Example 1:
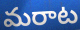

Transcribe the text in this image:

మరాట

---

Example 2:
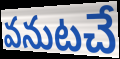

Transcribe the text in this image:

వనుటచే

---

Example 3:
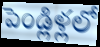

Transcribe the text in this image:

పెండ్లిళ్లలో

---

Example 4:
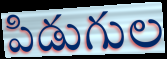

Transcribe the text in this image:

పిడుగుల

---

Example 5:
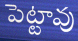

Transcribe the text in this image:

పెట్టావు